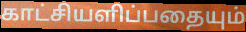
காட்சியளிப்பதையும்